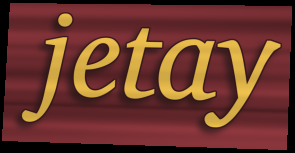
jetay